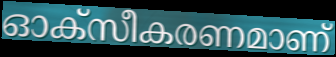
ഓക്സീകരണമാണ്